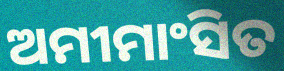
ଅମୀମାଂସିତ